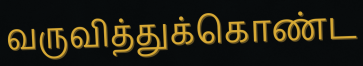
வருவித்துக்கொண்ட